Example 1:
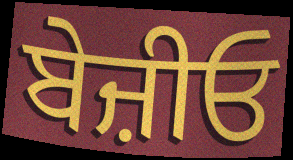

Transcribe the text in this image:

ਬੇਜ਼ੀਓ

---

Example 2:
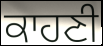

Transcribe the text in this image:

ਕਾਹਣੀ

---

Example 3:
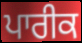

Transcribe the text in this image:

ਪਾਰੀਕ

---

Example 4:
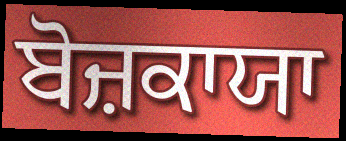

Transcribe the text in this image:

ਬੋਜ਼ਕਾਯਾ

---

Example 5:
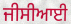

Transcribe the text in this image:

ਜੀਸੀਆਈ